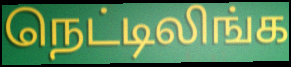
நெட்டிலிங்க